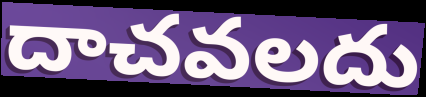
దాచవలదు